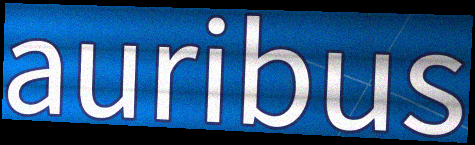
auribus